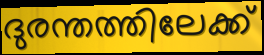
ദുരന്തത്തിലേക്ക്